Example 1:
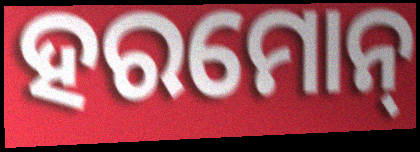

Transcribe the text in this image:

ହରମୋନ୍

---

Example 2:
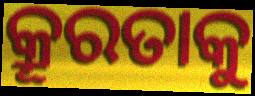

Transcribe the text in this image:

କ୍ରୂରତାକୁ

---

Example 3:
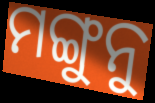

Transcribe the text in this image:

ମଙ୍ଗୁନୁ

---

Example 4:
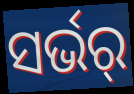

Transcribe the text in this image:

ସର୍ଭର୍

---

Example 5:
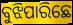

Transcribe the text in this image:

ବୁଝିପାରିଛେ